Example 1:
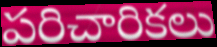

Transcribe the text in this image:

పరిచారికలు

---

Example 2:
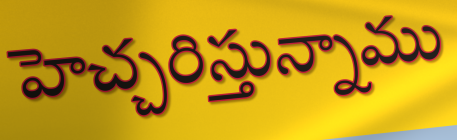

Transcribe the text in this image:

హెచ్చరిస్తున్నాము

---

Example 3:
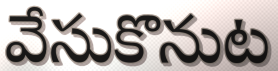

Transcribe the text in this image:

వేసుకొనుట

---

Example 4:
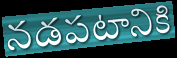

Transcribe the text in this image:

నడపటానికి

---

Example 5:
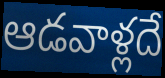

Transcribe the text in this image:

ఆడవాళ్లదే